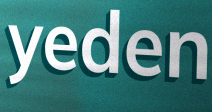
yeden